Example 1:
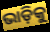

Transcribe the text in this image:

ଭାଡ଼ିକୁ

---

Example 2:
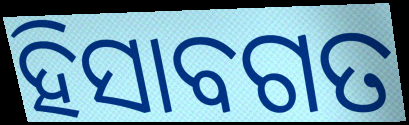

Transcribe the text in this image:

ହିସାବଗତ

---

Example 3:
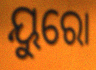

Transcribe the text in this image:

ୟୁରୋ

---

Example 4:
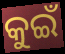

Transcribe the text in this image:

କୁଇଁ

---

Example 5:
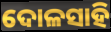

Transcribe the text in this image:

ଦୋଳସାହି